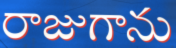
రాజుగాను